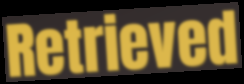
Retrieved